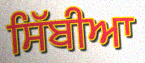
ਸਿੱਬੀਆ